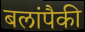
बलांपैकी